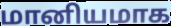
மானியமாக